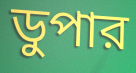
ডুপার